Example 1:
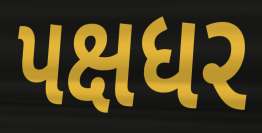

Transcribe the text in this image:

પક્ષધર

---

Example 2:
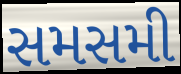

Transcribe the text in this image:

સમસમી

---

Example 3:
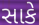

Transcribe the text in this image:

સાકે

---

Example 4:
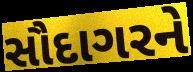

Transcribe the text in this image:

સૌદાગરને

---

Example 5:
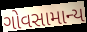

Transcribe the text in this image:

ગોવસામાન્ય